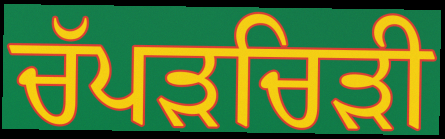
ਚੱਪੜਚਿੜੀ